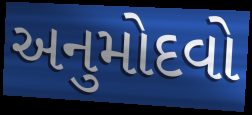
અનુમોદવો